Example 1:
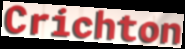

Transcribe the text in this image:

Crichton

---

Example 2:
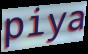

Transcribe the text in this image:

piya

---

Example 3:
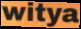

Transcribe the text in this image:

witya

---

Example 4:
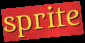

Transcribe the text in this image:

sprite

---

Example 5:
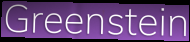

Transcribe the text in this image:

Greenstein